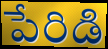
పేరిడి